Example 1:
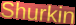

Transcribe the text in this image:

Shurkin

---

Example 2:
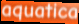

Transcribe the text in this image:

aquatica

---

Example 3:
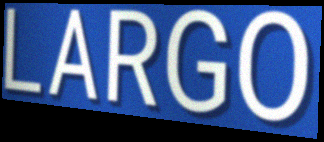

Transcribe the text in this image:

LARGO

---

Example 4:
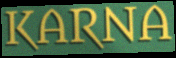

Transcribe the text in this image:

KARNA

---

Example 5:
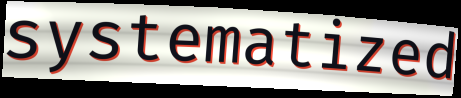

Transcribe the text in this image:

systematized